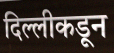
दिल्लीकडून